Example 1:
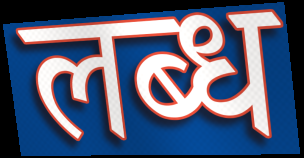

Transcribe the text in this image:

लब्ध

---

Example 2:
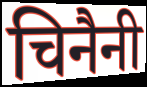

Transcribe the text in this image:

चिनैनी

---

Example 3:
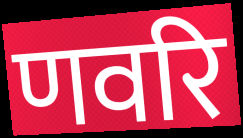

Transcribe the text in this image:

णवरि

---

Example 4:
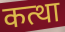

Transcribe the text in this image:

कत्था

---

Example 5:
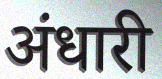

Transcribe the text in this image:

अंधारी